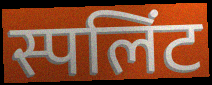
स्पलिंट